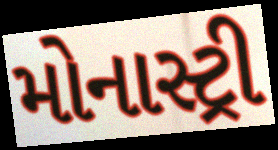
મોનાસ્ટ્રી